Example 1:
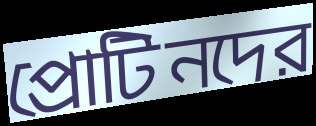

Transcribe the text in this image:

প্রোটিনদের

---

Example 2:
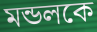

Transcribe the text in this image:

মন্ডলকে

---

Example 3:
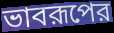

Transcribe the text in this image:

ভাবরূপের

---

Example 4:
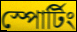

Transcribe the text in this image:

স্পোর্টিং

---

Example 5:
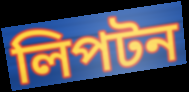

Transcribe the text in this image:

লিপটন